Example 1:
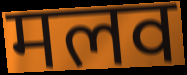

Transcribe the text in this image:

मलव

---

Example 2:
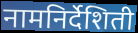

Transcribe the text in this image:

नामनिर्देशिती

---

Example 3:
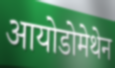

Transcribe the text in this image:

आयोडोमेथेन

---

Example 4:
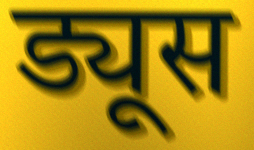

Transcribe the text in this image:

ड्यूस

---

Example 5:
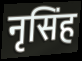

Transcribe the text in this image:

नृसिंह